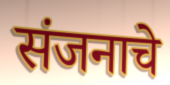
संजनाचे